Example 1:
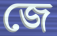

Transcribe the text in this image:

জে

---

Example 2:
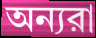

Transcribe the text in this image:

অন্যরা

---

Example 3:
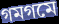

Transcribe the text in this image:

গমগমে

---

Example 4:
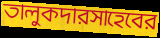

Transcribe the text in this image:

তালুকদারসাহেবের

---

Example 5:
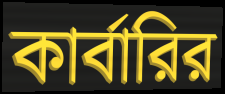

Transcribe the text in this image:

কার্বারির